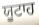
ਯੂਟਾਹ